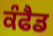
ਕੰਫੈਡ